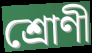
শ্রোণী